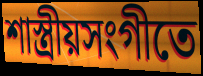
শাস্ত্রীয়সংগীতে